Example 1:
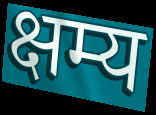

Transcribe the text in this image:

क्षम्य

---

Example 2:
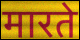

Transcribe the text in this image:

मारते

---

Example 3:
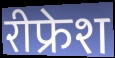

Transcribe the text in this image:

रीफ्रेश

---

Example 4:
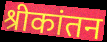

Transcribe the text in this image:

श्रीकांतन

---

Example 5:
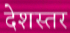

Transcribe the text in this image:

देशस्तर